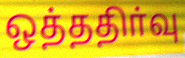
ஒத்ததிர்வு